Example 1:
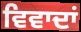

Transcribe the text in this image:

ਵਿਵਾਦਾਂ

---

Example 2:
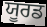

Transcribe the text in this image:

ਯੂਰਡ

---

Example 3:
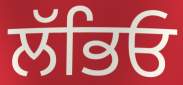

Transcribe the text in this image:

ਲੱਭਿਓ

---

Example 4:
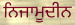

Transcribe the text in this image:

ਨਿਜਾਮੂਦੀਨ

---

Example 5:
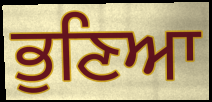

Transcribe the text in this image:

ਭੁਣਿਆ